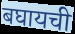
बघायची